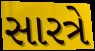
સારત્રે